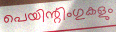
പെയിന്റിംഗുകളും